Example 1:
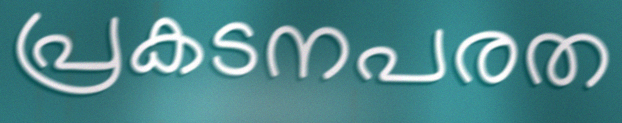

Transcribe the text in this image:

പ്രകടനപരത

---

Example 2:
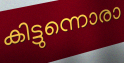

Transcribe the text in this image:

കിട്ടുന്നൊരാ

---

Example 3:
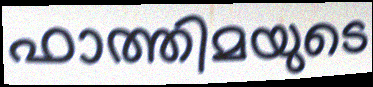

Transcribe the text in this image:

ഫാത്തിമയുടെ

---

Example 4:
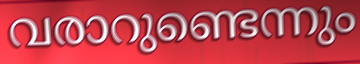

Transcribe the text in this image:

വരാറുണ്ടെന്നും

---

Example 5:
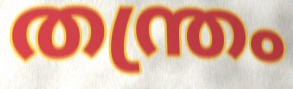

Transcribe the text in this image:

തന്ത്രം